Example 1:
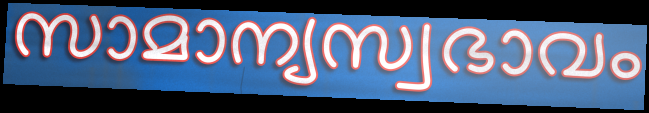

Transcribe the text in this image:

സാമാന്യസ്വഭാവം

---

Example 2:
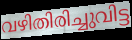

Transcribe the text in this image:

വഴിതിരിച്ചുവിട്ട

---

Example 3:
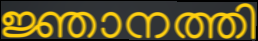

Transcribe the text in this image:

ജ്ഞാനത്തി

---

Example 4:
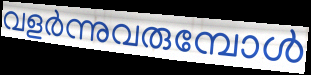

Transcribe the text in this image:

വളർന്നുവരുമ്പോൾ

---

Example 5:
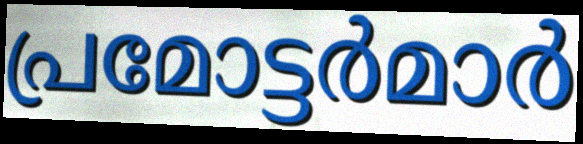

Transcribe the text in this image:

പ്രമോട്ടർമാർ